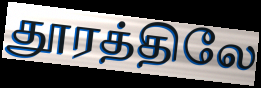
தூரத்திலே